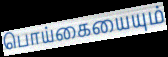
பொய்கையையும்